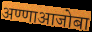
अण्णाआजोबा